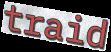
traid